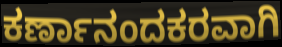
ಕರ್ಣಾನಂದಕರವಾಗಿ